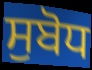
ਸੁਬੋਧ